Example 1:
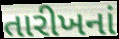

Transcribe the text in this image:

તારીખનાં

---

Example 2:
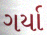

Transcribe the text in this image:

ગર્યા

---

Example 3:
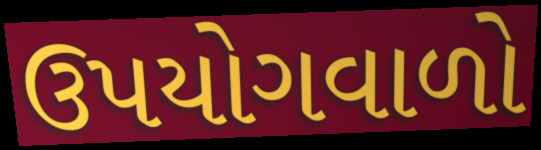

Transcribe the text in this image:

ઉપયોગવાળો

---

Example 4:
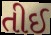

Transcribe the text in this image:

તીઈ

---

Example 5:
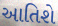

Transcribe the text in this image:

આતિશે